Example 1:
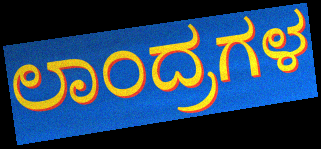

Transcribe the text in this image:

ಲಾಂದ್ರಗಳ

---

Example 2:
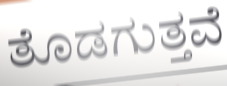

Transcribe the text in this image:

ತೊಡಗುತ್ತವೆ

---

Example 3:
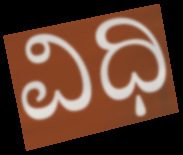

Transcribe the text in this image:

ವಿಧಿ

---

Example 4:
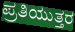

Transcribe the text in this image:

ಪ್ರತಿಯುತ್ತರ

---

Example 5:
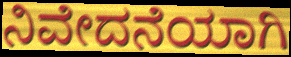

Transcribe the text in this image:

ನಿವೇದನೆಯಾಗಿ